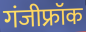
गंजीफ्रॉक